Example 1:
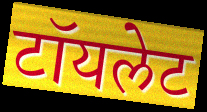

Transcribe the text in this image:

टॉयलेट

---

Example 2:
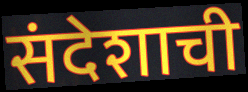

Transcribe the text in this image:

संदेशाची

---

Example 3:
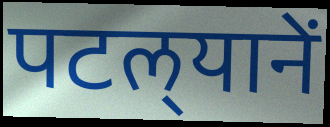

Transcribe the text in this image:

पटल्यानें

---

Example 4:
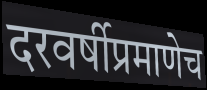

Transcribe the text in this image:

दरवर्षीप्रमाणेच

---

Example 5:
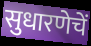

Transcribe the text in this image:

सुधारणेचें